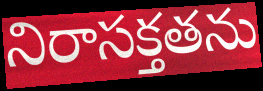
నిరాసక్తతను